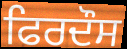
ਫਿਰਦੌਸ